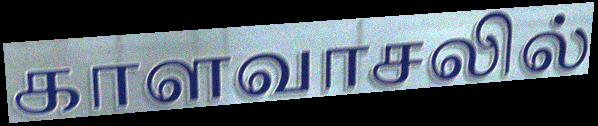
காளவாசலில்